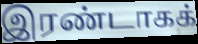
இரண்டாகக்